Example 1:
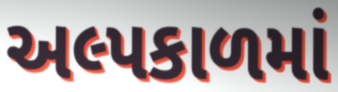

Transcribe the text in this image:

અલ્પકાળમાં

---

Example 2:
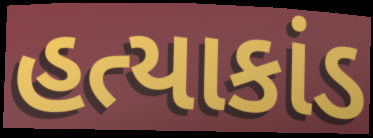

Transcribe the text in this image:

હત્યાકાંડ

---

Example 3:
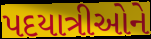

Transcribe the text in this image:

પદયાત્રીઓને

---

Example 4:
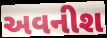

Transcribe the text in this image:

અવનીશ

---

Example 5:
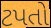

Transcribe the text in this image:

ટપતો